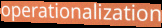
operationalization